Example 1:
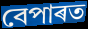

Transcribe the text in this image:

বেপাৰত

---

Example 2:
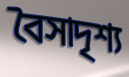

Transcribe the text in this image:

বৈসাদৃশ্য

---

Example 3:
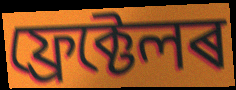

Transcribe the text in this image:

ফ্ৰেক্টেলৰ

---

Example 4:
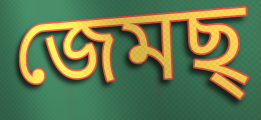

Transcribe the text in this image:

জেমছ্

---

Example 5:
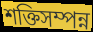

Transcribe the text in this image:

শক্তিসম্পন্ন